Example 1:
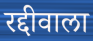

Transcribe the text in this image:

रद्दीवाला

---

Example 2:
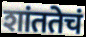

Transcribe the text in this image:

शांततेचं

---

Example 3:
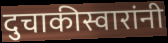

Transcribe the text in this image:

दुचाकीस्वारांनी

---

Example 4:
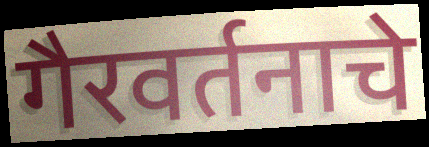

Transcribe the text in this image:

गैरवर्तनाचे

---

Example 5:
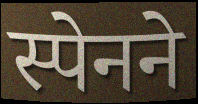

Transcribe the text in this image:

स्पेनने